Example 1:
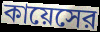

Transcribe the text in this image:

কায়েসের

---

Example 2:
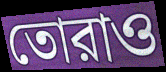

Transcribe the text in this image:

তোরাও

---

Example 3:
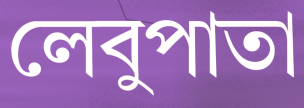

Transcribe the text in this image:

লেবুপাতা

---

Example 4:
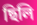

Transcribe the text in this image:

ছিলি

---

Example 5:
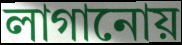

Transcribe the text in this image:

লাগানোয়